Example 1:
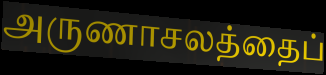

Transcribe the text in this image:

அருணாசலத்தைப்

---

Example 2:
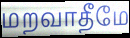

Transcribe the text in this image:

மறவாதீமே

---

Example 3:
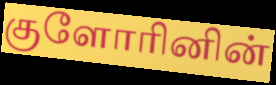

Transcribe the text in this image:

குளோரினின்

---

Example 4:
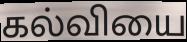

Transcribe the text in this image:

கல்வியை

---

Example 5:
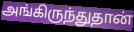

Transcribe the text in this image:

அங்கிருந்துதான்